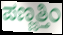
ಪಣ್ಣತ್ತಿಂ